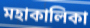
মহাকালিকা